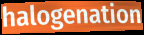
halogenation